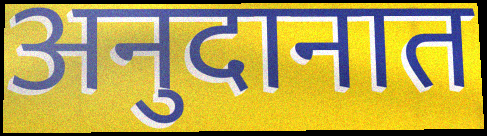
अनुदानात